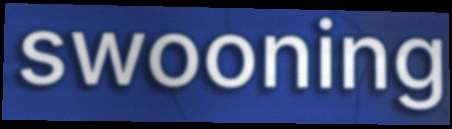
swooning